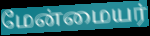
மேன்மையர்